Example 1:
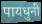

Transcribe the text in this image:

पायधुनी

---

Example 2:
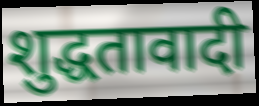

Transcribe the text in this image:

शुद्धतावादी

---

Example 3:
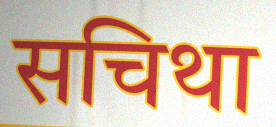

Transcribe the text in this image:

सचिथा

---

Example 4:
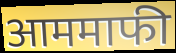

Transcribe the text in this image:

आममाफी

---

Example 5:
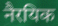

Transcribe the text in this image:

नैरयिक